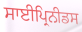
ਸਾਈਪ੍ਰਿਨੀਡਸ